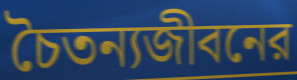
চৈতন্যজীবনের